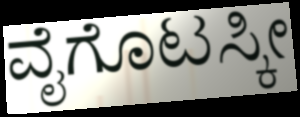
ವೈಗೊಟಸ್ಕೀ